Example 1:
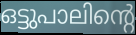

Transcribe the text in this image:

ഒട്ടുപാലിന്റെ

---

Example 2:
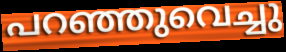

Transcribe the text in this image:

പറഞ്ഞുവെച്ചു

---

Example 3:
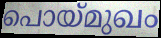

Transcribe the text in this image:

പൊയ്മുഖം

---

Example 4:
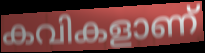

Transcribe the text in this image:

കവികളാണ്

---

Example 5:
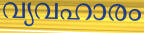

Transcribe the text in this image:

വ്യവഹാരം